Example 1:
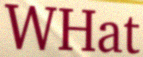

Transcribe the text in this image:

WHat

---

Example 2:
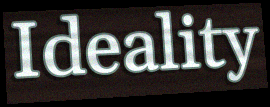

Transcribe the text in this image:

Ideality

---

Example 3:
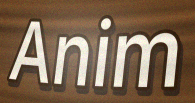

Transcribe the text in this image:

Anim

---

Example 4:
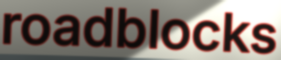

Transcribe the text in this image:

roadblocks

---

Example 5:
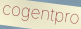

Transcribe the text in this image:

cogentpro